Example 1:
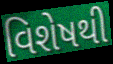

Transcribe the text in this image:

વિશેષથી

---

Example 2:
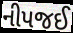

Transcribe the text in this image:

નીપજઈ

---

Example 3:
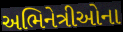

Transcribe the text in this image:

અભિનેત્રીઓના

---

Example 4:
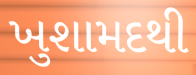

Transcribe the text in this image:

ખુશામદથી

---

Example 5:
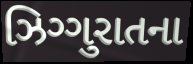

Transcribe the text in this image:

ઝિગ્ગુરાતના